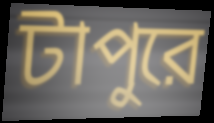
টাপুরে